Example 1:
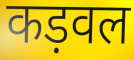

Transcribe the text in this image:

कड़वल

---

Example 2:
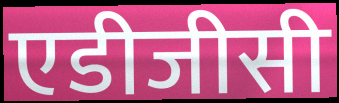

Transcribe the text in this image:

एडीजीसी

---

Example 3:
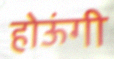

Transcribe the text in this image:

होऊंगी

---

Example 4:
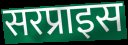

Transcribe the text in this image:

सरप्राइस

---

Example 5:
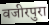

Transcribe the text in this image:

वजीरपुरा